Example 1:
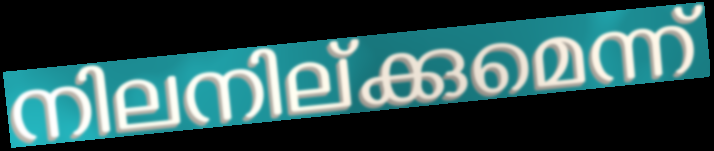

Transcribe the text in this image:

നിലനില്ക്കുമെന്ന്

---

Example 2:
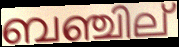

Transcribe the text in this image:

ബഞ്ചില്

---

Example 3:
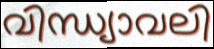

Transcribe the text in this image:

വിന്ധ്യാവലി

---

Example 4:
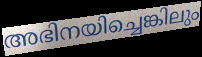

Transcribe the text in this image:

അഭിനയിച്ചെങ്കിലും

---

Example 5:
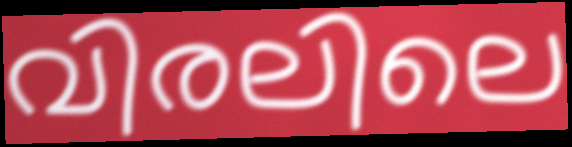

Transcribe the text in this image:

വിരലിലെ